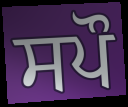
ਸਪੌ